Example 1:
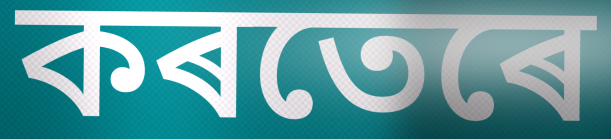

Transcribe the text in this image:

কৰতেৰে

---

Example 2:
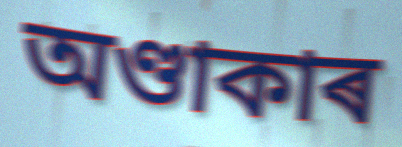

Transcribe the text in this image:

অণ্ডাকাৰ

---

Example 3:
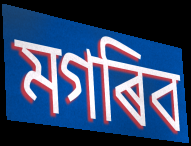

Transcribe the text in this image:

মগৰিব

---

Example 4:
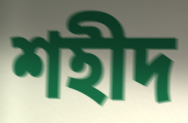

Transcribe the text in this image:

শহীদ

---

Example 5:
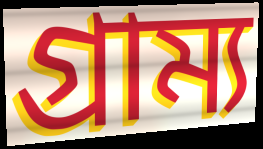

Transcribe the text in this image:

গ্ৰাম্য